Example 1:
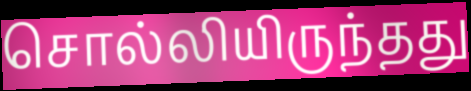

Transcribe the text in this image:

சொல்லியிருந்தது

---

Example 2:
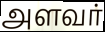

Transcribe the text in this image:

அளவர்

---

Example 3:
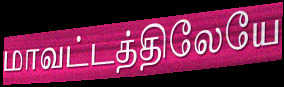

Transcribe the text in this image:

மாவட்டத்திலேயே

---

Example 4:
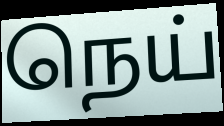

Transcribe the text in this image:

நெய்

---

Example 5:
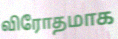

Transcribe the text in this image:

விரோதமாக